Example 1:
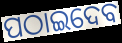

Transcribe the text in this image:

ପଠାଇଦେବ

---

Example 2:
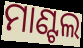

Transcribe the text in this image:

ମାଣ୍ଟଲ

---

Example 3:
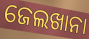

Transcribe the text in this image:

ଜେଲଖାନା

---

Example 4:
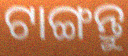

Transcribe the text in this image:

ଟାଙ୍ଗନ୍ତୁ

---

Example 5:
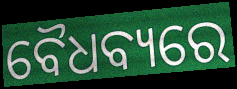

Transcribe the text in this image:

ବୈଧବ୍ୟରେ